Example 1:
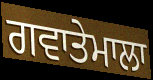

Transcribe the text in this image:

ਗਵਾਤੇਮਾਲਾ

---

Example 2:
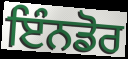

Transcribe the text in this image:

ਇੰਨਡੋਰ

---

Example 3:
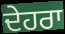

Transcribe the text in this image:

ਦੇਹਰਾ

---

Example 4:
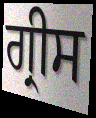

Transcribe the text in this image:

ਗ੍ਰੀਸ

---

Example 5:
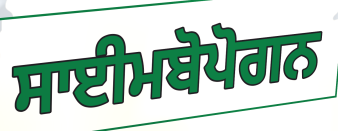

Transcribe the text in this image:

ਸਾਈਮਬੋਪੋਗਨ